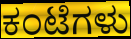
ಕಂಟೆಗಳು